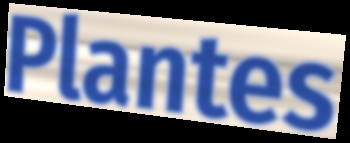
Plantes